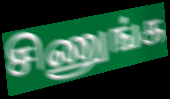
சிணுங்க